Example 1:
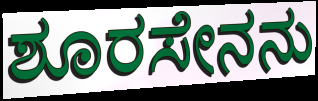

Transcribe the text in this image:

ಶೂರಸೇನನು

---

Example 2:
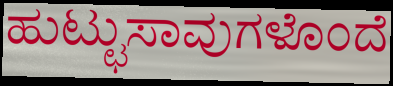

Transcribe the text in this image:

ಹುಟ್ಟುಸಾವುಗಳೊಂದೆ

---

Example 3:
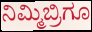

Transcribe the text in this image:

ನಿಮ್ಮಿಬ್ರಿಗೂ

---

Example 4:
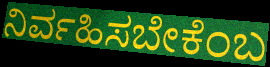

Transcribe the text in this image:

ನಿರ್ವಹಿಸಬೇಕೆಂಬ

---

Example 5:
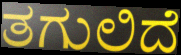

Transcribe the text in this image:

ತಗುಲಿದೆ